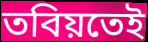
তবিয়তেই